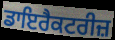
ਡਾਇਰੈਕਟਰੀਜ਼